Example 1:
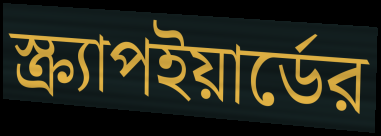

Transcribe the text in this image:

স্ক্র্যাপইয়ার্ডের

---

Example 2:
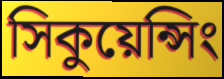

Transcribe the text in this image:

সিকুয়েন্সিং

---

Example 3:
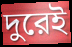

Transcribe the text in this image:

দুরেই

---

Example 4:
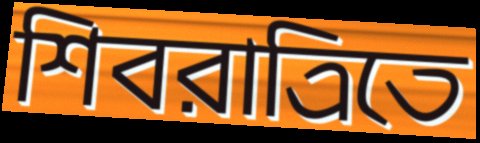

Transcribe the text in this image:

শিবরাত্রিতে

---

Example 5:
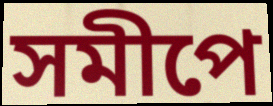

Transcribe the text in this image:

সমীপে